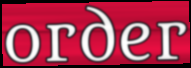
order